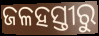
ଜଳହସ୍ତୀରୁ